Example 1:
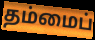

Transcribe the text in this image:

தம்மைப்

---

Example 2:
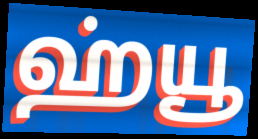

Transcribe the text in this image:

ஹ்யூ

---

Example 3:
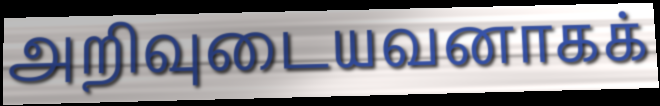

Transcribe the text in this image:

அறிவுடையவனாகக்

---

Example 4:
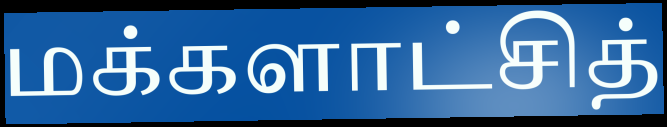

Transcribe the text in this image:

மக்களாட்சித்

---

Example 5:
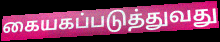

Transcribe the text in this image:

கையகப்படுத்துவது